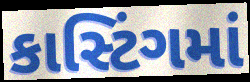
કાસ્ટિંગમાં